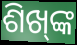
ଶିଖ୍‍ଙ୍କ